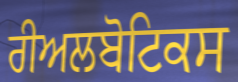
ਰੀਅਲਬੋਟਿਕਸ